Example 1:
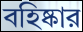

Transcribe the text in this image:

বহিষ্কার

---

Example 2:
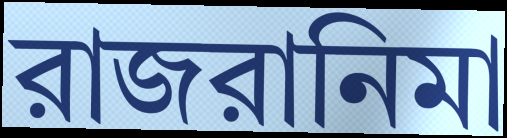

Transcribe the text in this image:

রাজরানিমা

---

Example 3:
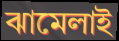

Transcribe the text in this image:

ঝামেলাই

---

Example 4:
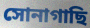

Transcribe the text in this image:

সোনাগাছি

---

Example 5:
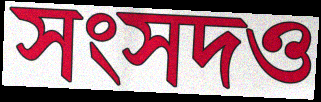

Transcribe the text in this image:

সংসদও